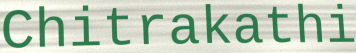
Chitrakathi